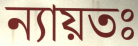
ন্যায়তঃ